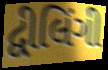
દ્વીલિંગી